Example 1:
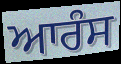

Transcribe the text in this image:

ਆਰੰਸ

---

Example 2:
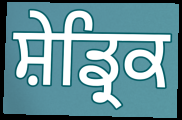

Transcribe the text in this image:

ਸ਼ੇਡ੍ਰਿਕ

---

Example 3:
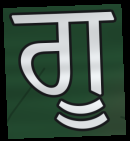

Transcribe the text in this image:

ਗੂ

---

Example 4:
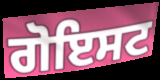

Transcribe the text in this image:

ਗੋਇਸਟ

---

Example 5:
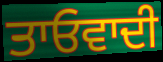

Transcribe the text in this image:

ਤਾਓਵਾਦੀ